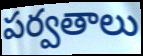
పర్వతాలు